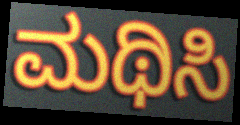
ಮಥಿಸಿ